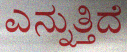
ಎನ್ನುತ್ತಿದೆ